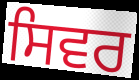
ਸਿਵਰ